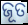
ଜୂତ